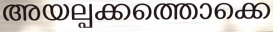
അയല്പക്കത്തൊക്കെ